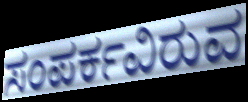
ಸಂಪರ್ಕವಿರುವ